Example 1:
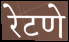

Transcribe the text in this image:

रेटणे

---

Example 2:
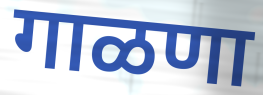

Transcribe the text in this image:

गाळणा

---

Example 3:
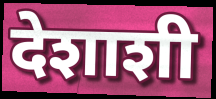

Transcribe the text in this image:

देशाशी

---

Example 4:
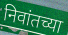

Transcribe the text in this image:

निवांतच्या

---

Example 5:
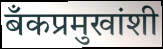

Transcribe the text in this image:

बँकप्रमुखांशी